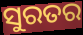
ସୁରତର